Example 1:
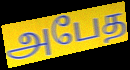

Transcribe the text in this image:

அபேத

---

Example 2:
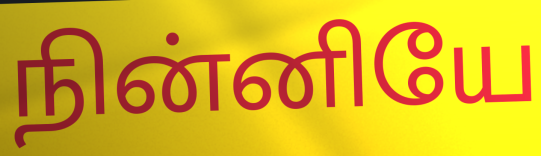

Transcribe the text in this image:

நின்னியே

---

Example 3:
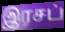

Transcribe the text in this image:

இரசப்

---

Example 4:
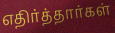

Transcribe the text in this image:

எதிர்த்தார்கள்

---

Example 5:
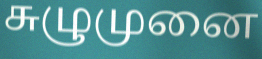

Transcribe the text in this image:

சுழுமுனை